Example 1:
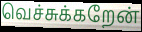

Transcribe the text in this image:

வெச்சுக்கறேன்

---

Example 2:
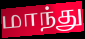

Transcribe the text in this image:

மாந்து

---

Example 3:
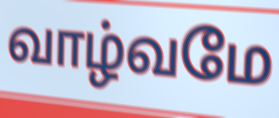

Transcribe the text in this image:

வாழ்வமே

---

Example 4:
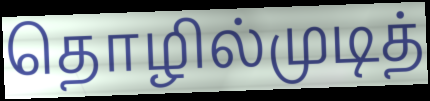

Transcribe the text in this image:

தொழில்முடித்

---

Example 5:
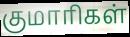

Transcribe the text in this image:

குமாரிகள்